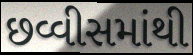
છવ્વીસમાંથી